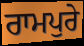
ਰਾਮਪੁਰੇ